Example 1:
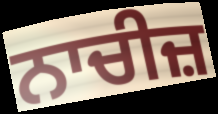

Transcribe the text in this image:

ਨਾਚੀਜ਼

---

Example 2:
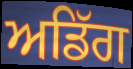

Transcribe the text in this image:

ਅਡਿੱਗ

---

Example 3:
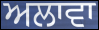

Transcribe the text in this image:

ਅਲਾਵਾ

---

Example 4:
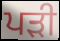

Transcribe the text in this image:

ਪਡ਼ੀ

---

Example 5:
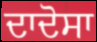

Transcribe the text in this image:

ਦਾਦੋਸਾ